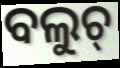
ବଲୁଚ୍